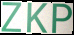
ZKP